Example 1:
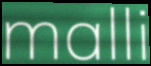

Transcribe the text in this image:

malli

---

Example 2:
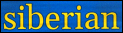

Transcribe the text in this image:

siberian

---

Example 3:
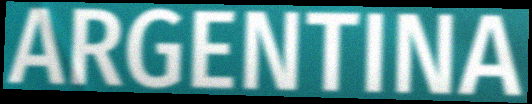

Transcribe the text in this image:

ARGENTINA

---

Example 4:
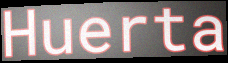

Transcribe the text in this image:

Huerta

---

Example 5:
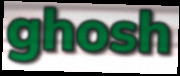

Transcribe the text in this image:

ghosh